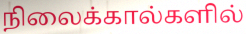
நிலைக்கால்களில்